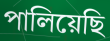
পালিয়েছি